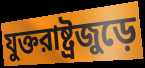
যুক্তরাষ্ট্রজুড়ে